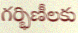
గర్భిణీలకు